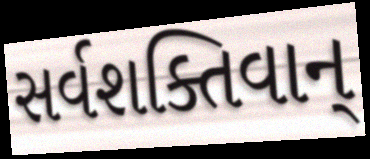
સર્વશક્તિવાન્